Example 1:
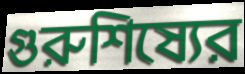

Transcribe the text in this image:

গুরুশিষ্যের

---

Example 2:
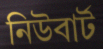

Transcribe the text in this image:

নিউবার্ট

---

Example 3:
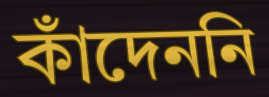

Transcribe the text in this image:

কাঁদেননি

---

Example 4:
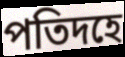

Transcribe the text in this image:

পতিদহে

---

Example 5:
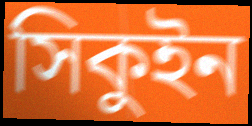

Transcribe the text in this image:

সিকুইন